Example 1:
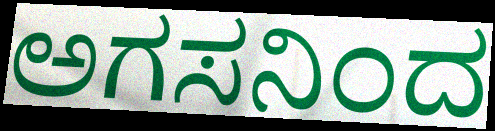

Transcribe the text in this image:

ಅಗಸನಿಂದ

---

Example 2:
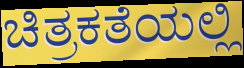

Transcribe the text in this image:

ಚಿತ್ರಕತೆಯಲ್ಲಿ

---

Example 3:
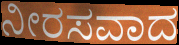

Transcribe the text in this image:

ನೀರಸವಾದ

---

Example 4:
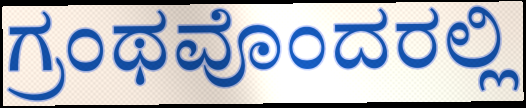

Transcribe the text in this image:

ಗ್ರಂಥವೊಂದರಲ್ಲಿ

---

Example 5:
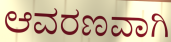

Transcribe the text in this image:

ಆವರಣವಾಗಿ